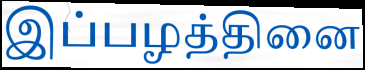
இப்பழத்தினை